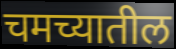
चमच्यातील